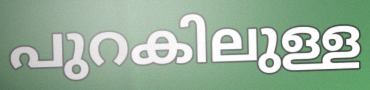
പുറകിലുള്ള